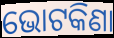
ଭୋଟକିଣା